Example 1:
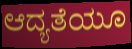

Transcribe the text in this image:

ಆದ್ಯತೆಯೂ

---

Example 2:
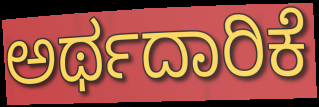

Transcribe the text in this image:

ಅರ್ಥದಾರಿಕೆ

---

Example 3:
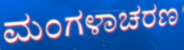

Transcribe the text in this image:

ಮಂಗಳಾಚರಣ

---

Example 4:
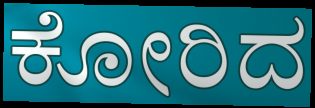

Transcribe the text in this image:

ಕೋರಿದ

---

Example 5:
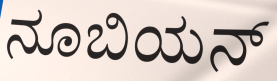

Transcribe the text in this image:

ನೂಬಿಯನ್